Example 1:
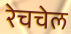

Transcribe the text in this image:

रेचचेल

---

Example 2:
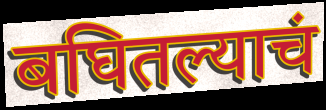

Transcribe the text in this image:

बघितल्याचं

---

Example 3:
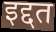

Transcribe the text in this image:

इद्दत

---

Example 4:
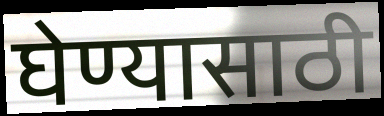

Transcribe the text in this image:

घेण्यासाठी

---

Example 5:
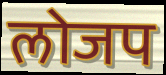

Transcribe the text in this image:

लोजप